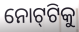
ନୋଟ୍‌ଟିକୁ